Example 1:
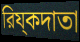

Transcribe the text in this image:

রিয্কদাতা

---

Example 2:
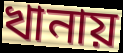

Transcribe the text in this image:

খানায়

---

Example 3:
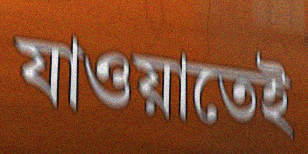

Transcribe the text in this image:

যাওয়াতেই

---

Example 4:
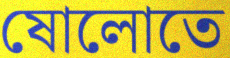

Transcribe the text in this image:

ষোলোতে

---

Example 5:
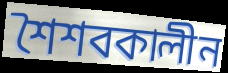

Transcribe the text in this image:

শৈশবকালীন